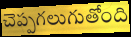
చెప్పగలుగుతోంది